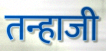
तन्हाजी